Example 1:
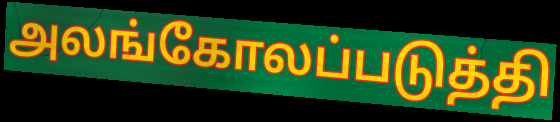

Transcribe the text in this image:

அலங்கோலப்படுத்தி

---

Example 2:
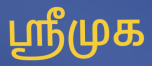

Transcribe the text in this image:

ஸ்ரீமுக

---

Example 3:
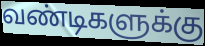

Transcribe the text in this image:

வண்டிகளுக்கு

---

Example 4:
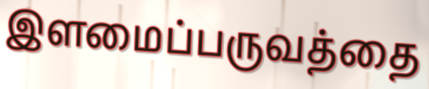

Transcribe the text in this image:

இளமைப்பருவத்தை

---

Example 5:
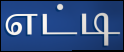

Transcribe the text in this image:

எட்டி